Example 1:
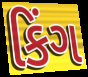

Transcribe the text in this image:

કિંગ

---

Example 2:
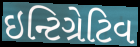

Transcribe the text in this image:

ઇન્ટિગ્રેટિવ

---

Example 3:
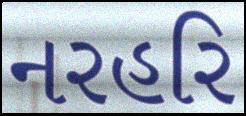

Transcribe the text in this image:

નરહરિ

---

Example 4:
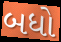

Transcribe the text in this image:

બધો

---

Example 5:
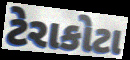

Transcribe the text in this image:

ટેરાકોટા